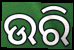
ଉରି